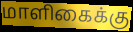
மாளிகைக்கு